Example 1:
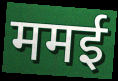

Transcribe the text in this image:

ममई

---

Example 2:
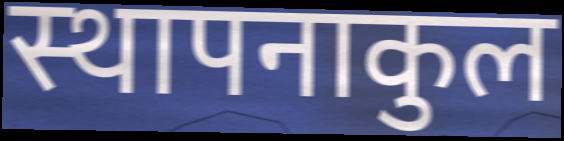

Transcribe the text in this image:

स्थापनाकुल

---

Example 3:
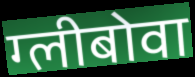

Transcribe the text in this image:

ग्लीबोवा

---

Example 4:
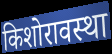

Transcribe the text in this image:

किशोरावस्था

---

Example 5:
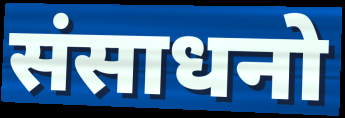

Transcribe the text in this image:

संसाधनो